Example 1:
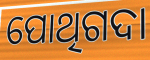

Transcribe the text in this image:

ପୋଥିଗଦା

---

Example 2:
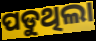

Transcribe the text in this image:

ପଡୁଥିଲା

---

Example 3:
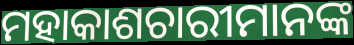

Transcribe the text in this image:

ମହାକାଶଚାରୀମାନଙ୍କ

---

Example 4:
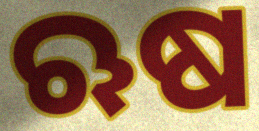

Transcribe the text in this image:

ଋଷ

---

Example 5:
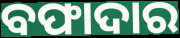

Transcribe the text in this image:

ବଫାଦାର